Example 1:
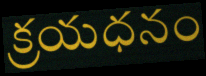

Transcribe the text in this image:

క్రయధనం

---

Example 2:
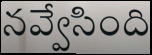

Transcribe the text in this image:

నవ్వేసింది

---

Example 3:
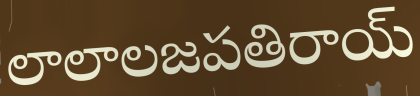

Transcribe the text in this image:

లాలాలజపతిరాయ్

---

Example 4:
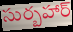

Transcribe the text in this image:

సుర్బహార్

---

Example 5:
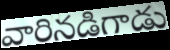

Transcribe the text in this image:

వారినడిగాడు